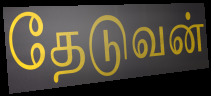
தேடுவன்